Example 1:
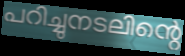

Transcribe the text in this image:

പറിച്ചുനടലിന്റെ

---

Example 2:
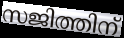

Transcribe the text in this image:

സജിത്തിന്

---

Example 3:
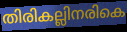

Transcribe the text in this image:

തിരികല്ലിനരികെ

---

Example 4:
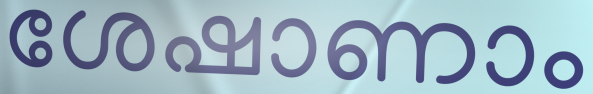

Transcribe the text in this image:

ശേഷാണാം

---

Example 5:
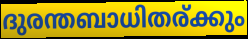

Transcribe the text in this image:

ദുരന്തബാധിതര്ക്കും